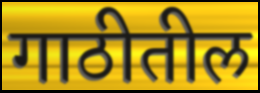
गाठीतील